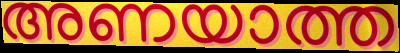
അണയാത്ത